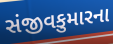
સંજીવકુમારના